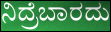
ನಿದ್ರೆಬಾರದು